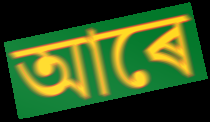
আৰে